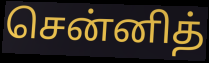
சென்னித்